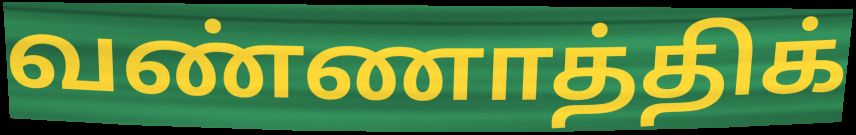
வண்ணாத்திக்